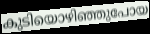
കുടിയൊഴിഞ്ഞുപോയ